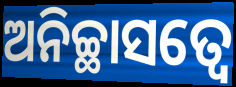
ଅନିଚ୍ଛାସତ୍ୱେ